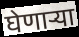
घेणार्‍या